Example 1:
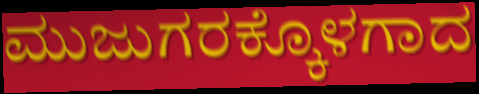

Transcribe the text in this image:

ಮುಜುಗರಕ್ಕೊಳಗಾದ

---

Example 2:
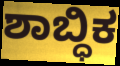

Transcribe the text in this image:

ಶಾಬ್ಧಿಕ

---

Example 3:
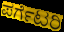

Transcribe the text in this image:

ಪರ್ಗೆಟರಿ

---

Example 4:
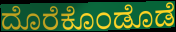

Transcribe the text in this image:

ದೊರೆಕೊಂಡೊಡೆ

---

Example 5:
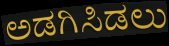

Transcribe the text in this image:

ಅಡಗಿಸಿಡಲು